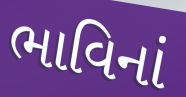
ભાવિનાં